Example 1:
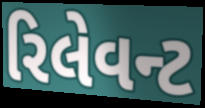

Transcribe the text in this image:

રિલેવન્ટ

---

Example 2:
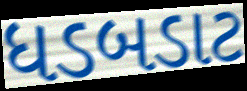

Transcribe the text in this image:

ધડબડાટ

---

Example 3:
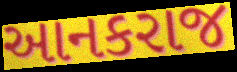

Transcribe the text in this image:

આનકરાજ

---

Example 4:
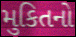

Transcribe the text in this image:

મુકિતનો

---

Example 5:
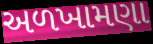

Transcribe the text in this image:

અળખામણા